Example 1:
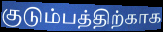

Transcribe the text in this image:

குடும்பத்திற்காக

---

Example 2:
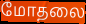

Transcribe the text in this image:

மோதலை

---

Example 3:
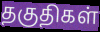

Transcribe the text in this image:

தகுதிகள்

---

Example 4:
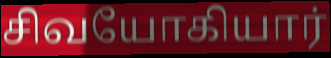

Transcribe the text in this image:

சிவயோகியார்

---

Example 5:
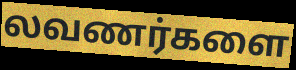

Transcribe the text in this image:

லவணர்களை